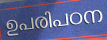
ഉപരിപഠന